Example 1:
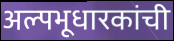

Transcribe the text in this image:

अल्पभूधारकांची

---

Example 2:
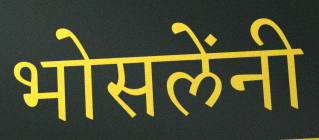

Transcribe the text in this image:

भोसलेंनी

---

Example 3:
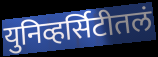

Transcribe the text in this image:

युनिव्हर्सिटीतलं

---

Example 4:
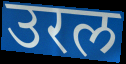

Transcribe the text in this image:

उरल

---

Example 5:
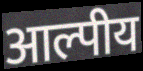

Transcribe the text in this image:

आल्पीय